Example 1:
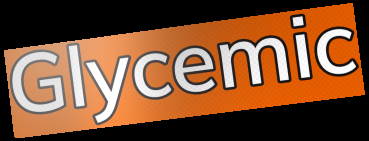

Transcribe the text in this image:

Glycemic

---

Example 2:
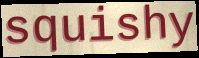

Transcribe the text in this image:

squishy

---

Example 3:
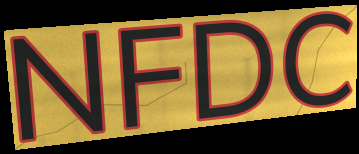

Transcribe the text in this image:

NFDC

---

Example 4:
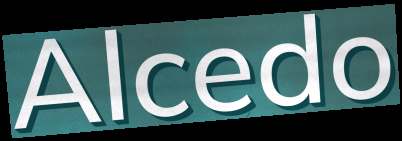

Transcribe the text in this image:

Alcedo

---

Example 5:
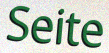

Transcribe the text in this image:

Seite